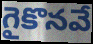
గైకొనవే